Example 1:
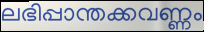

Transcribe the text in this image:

ലഭിപ്പാന്തക്കവണ്ണം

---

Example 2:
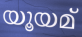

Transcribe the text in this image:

യൂയമ്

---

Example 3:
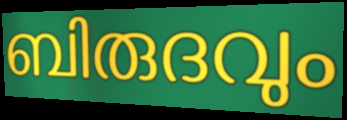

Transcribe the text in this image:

ബിരുദവും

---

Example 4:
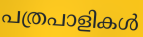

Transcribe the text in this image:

പത്രപാളികൾ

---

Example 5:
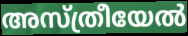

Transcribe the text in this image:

അസ്ത്രീയേൽ